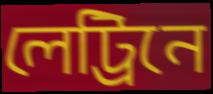
লেট্রিনে